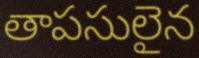
తాపసులైన